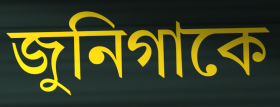
জুনিগাকে